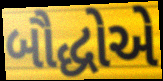
બૌદ્ધોએ